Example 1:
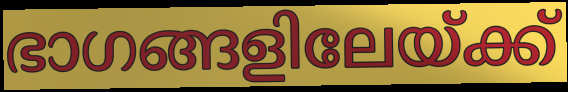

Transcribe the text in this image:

ഭാഗങ്ങളിലേയ്ക്ക്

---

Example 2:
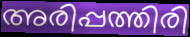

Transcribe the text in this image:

അരിപ്പത്തിരി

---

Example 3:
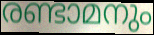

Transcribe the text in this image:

രണ്ടാമനും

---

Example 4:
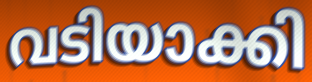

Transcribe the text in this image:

വടിയാക്കി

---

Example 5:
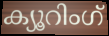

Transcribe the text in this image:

ക്യൂറിംഗ്